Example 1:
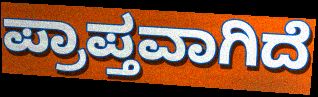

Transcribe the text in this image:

ಪ್ರಾಪ್ತವಾಗಿದೆ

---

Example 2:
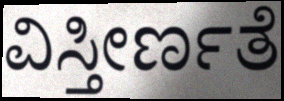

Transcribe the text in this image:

ವಿಸ್ತೀರ್ಣತೆ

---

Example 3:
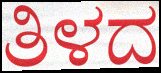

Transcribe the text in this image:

ತಿಳದ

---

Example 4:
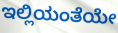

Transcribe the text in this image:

ಇಲ್ಲಿಯಂತೆಯೇ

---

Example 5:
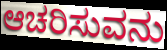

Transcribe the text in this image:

ಆಚರಿಸುವನು